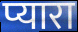
प्‍यारा